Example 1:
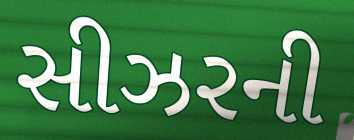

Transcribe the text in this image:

સીઝરની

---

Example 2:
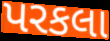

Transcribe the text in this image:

પરકલા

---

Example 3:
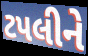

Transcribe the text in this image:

ટપલીને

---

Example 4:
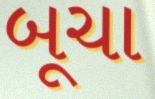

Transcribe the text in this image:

બૂચા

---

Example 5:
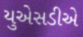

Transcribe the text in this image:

યુએસડીએ